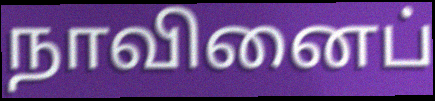
நாவினைப்